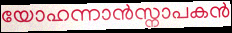
യോഹന്നാൻസ്നാപകൻ